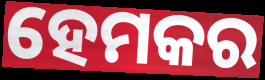
ହେମକର